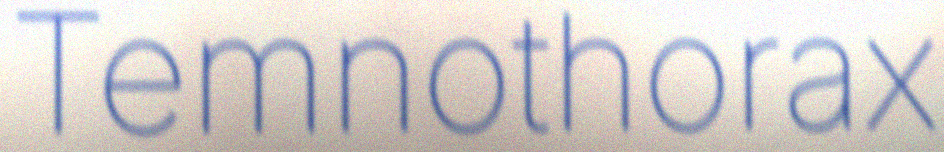
Temnothorax